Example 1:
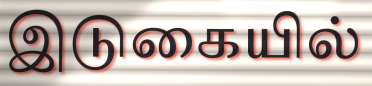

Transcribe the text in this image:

இடுகையில்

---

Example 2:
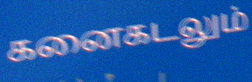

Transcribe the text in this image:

கனைகடலும்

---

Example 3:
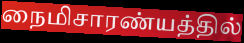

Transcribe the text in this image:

நைமிசாரண்யத்தில்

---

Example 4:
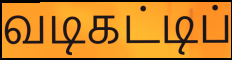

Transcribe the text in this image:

வடிகட்டிப்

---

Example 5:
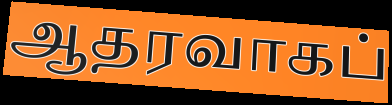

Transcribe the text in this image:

ஆதரவாகப்